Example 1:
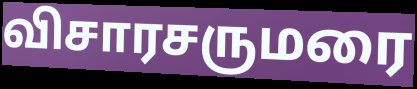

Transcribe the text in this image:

விசாரசருமரை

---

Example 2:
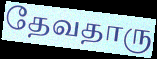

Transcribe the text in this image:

தேவதாரு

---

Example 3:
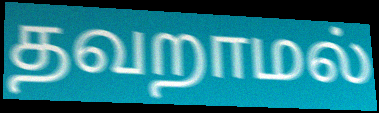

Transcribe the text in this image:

தவறாமல்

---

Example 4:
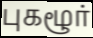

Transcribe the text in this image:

புகழூர்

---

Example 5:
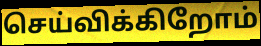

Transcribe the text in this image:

செய்விக்கிறோம்